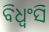
ବିଧ୍ୱଂସି